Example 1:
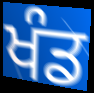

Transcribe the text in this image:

ਖੰਡ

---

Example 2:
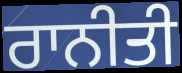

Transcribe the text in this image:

ਰਾਨੀਤੀ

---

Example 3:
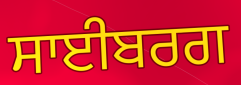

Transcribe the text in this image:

ਸਾਈਬਰਗ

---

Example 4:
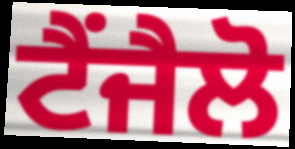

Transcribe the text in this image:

ਟੈਂਜੈਲੋ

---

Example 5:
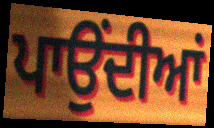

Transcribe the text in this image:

ਪਾਉਂਦੀਆਂ